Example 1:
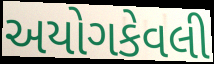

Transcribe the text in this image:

અયોગકેવલી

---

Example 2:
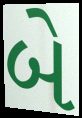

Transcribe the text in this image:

બે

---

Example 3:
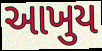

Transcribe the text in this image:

આખુય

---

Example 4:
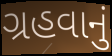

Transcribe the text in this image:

ગ્રહવાનું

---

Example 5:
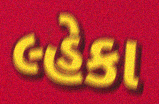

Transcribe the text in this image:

લ્હેકા